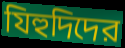
যিহুদিদের